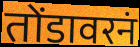
तोंडावरनं